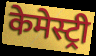
केमेस्ट्री